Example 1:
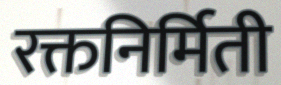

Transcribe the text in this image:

रक्तनिर्मिती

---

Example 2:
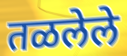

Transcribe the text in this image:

तळलेले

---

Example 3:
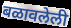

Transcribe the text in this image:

बळावलेली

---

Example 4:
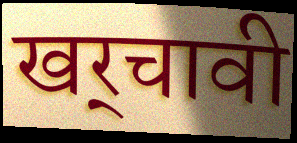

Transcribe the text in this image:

खर्चावी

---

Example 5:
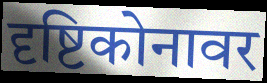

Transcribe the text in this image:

दृष्टिकोनावर